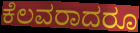
ಕೆಲವರಾದರೂ